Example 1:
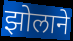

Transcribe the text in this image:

झोलाने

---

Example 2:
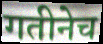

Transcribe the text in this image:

गतीनेच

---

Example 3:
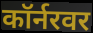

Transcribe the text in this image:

कॉर्नरवर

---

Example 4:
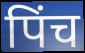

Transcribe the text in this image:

पिंच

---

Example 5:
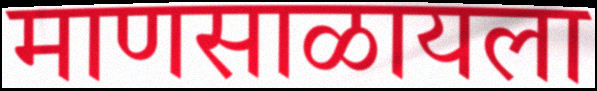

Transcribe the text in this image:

माणसाळायला